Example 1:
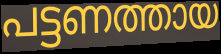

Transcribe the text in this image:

പട്ടണത്തായ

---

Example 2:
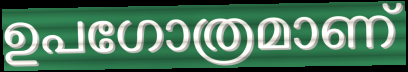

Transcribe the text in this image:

ഉപഗോത്രമാണ്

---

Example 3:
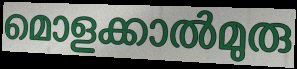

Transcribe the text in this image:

മൊളക്കാൽമുരു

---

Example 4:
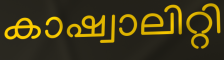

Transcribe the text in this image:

കാഷ്വാലിറ്റി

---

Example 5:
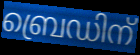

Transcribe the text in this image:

ബ്രെഡിന്